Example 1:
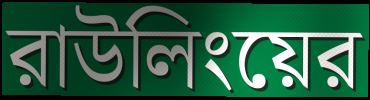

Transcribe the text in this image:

রাউলিংয়ের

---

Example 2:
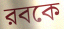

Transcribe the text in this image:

রবকে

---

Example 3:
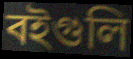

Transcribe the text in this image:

বইগুলি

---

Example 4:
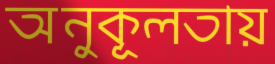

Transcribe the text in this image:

অনুকূলতায়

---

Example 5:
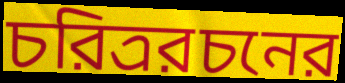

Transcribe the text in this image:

চরিত্ররচনের